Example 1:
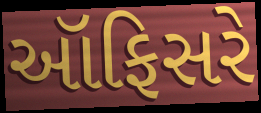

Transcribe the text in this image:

ઑફિસરે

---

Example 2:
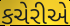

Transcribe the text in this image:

કચેરીએ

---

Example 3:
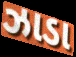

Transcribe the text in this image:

ઝાડા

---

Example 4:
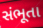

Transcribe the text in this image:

સંભૂતા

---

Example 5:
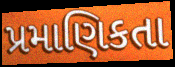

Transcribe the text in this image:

પ્રમાણિકતા